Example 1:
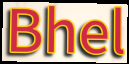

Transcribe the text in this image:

Bhel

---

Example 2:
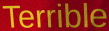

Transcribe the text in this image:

Terrible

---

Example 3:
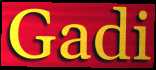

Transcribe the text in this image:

Gadi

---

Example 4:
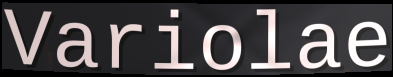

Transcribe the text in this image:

Variolae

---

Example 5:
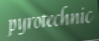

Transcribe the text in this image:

pyrotechnic